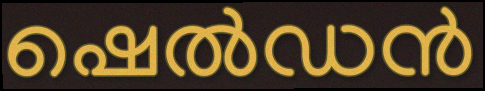
ഷെൽഡൻ